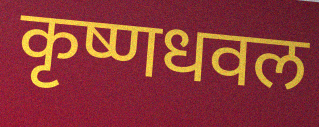
कृष्णधवल